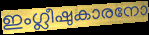
ഇംഗ്ലീഷുകാരനോ